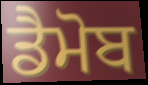
ਡੈਮੋਬ